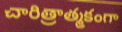
చారిత్రాత్మకంగా